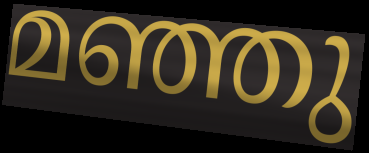
മഞ്ഞു